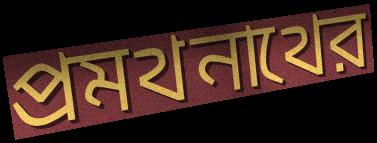
প্রমথনাথের